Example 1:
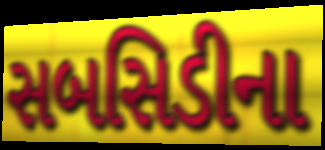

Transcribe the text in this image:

સબસિડીના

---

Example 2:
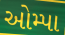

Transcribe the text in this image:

ઓમ્પા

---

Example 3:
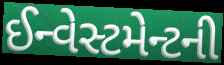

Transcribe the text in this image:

ઈન્વેસ્ટમેન્ટની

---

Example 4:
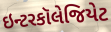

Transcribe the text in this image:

ઇન્ટરકૉલેજિયેટ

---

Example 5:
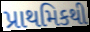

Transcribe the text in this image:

પ્રાથમિકથી